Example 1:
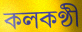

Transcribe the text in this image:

কলকণ্ঠী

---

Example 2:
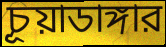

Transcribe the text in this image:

চূয়াডাঙ্গার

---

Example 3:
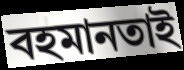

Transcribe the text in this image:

বহমানতাই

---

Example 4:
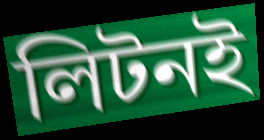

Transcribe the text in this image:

লিটনই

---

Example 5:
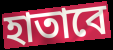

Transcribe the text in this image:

হাতাবে